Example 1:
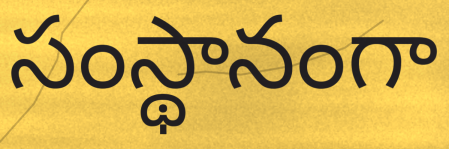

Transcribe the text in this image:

సంస్థానంగా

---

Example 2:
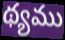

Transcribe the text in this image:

థ్యము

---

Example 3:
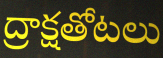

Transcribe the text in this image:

ద్రాక్షతోటలు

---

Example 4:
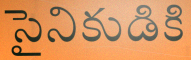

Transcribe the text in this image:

సైనికుడికి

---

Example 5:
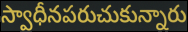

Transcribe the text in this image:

స్వాధీనపరుచుకున్నారు